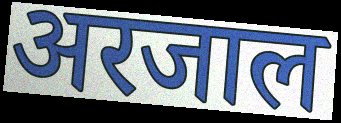
अरजाल